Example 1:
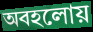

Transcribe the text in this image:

অবহলোয়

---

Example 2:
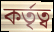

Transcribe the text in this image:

কর্তৃত্ব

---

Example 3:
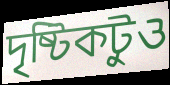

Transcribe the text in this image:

দৃষ্টিকটুও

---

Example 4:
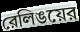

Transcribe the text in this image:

রেলিঙয়ের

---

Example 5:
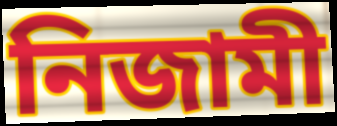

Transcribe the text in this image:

নিজামী